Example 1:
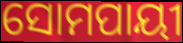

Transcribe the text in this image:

ସୋମପାୟୀ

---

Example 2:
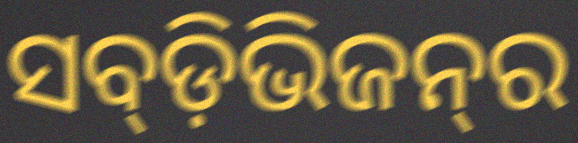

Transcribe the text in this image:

ସବ୍‍ଡ଼ିଭିଜନ୍‍ର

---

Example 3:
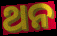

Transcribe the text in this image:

ଥନ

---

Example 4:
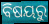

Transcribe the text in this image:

ବିଷୟରୁ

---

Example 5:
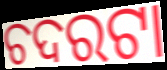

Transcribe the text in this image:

ଚଦରଟା